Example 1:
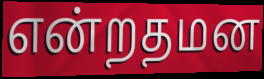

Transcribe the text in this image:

என்றதமன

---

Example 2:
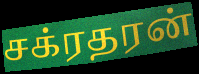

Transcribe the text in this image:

சக்ரதரன்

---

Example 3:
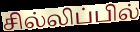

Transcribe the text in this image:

சில்லிப்பில்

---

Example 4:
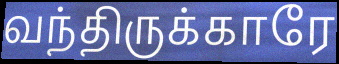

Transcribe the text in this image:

வந்திருக்காரே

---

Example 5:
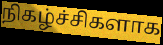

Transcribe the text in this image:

நிகழ்ச்சிகளாக